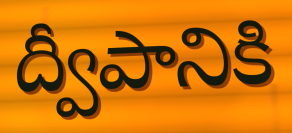
ద్వీపానికి